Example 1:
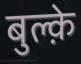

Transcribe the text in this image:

बुल्क़े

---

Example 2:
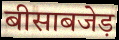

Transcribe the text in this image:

बीसाबजेड़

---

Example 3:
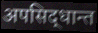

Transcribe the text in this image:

अपसिद्धान्त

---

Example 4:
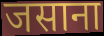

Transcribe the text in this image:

जसाना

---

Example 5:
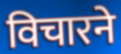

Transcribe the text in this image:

विचारने